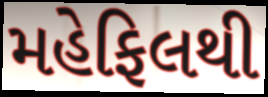
મહેફિલથી